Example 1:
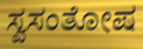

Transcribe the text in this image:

ಸ್ವಸಂತೋಷ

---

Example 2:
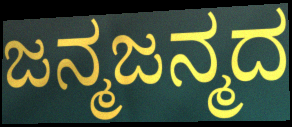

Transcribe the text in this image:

ಜನ್ಮಜನ್ಮದ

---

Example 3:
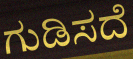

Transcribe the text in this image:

ಗುಡಿಸದೆ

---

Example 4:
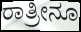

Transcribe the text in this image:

ರಾತ್ರೀನೂ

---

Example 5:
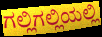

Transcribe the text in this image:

ಗಲ್ಲಿಗಲ್ಲಿಯಲ್ಲಿ